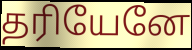
தரியேனே